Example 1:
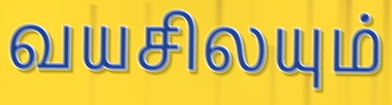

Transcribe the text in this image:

வயசிலயும்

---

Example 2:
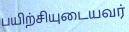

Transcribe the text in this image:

பயிற்சியுடையவர்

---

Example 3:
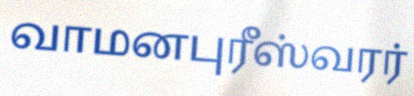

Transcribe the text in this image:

வாமனபுரீஸ்வரர்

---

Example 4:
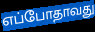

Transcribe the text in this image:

எப்போதாவது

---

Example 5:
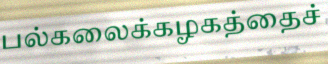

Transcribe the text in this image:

பல்கலைக்கழகத்தைச்